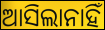
ଆସିଲାନାହିଁ